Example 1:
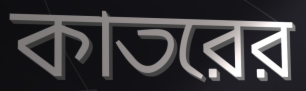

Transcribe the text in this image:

কাতরের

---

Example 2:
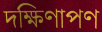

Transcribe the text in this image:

দক্ষিণাপণ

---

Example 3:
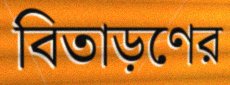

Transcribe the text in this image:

বিতাড়ণের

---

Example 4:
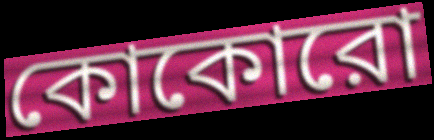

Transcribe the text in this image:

কোকোরো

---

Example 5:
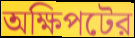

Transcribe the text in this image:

অক্ষিপটের